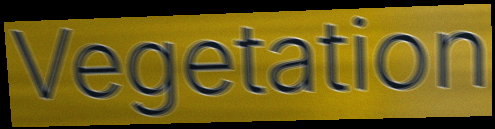
Vegetation